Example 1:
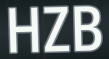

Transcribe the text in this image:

HZB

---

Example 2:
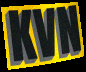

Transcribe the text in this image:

KVN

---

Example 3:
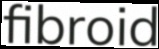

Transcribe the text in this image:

fibroid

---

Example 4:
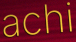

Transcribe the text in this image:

achi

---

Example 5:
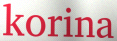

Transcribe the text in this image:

korina